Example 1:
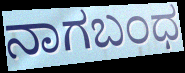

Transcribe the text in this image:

ನಾಗಬಂಧ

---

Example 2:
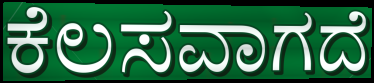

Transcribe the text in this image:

ಕೆಲಸವಾಗದೆ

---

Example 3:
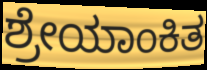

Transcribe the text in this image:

ಶ್ರೇಯಾಂಕಿತ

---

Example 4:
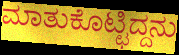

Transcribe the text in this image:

ಮಾತುಕೊಟ್ಟಿದ್ದನು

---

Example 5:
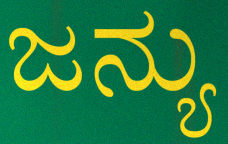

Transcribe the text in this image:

ಜನ್ಯು